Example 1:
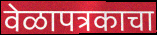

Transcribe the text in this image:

वेळापत्रकाचा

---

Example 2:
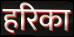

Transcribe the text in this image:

हरिका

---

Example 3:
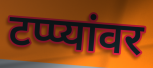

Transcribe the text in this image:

टप्प्यांवर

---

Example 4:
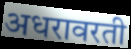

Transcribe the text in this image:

अधरावरती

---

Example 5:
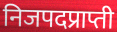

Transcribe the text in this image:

निजपदप्राप्ती